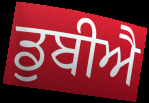
ਡੁਬੀਐ